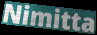
Nimitta